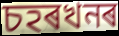
চহৰখনৰ